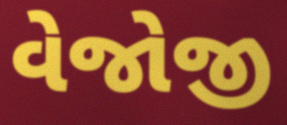
વેજોજી